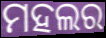
ମହଲର